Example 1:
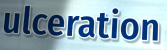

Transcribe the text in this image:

ulceration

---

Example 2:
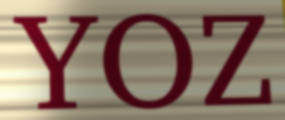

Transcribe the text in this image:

YOZ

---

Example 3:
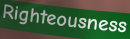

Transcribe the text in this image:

Righteousness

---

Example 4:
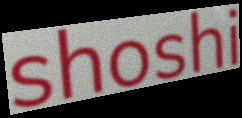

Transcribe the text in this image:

shoshi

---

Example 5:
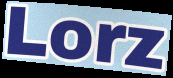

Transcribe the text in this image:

Lorz